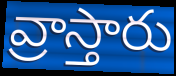
వ్రాస్తారు